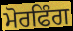
ਮੋਰਫਿੰਗ